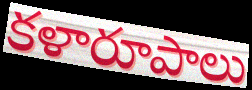
కళారూపాలు